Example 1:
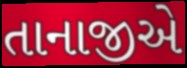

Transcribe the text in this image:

તાનાજીએ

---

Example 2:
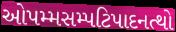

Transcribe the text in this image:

ઓપમ્મસમ્પટિપાદનત્થો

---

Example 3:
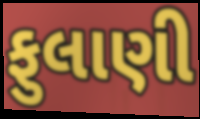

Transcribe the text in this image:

ફુલાણી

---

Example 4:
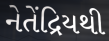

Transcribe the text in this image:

નેતેંદ્રિયથી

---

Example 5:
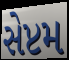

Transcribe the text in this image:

સેપ્ટમ